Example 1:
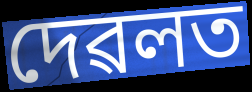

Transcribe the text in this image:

দেৱলত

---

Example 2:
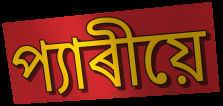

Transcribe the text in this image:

প্যাৰীয়ে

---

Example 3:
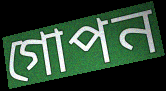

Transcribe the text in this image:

গোপন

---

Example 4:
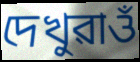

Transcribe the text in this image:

দেখুৱাওঁ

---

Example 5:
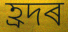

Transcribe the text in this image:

হ্ৰদৰ